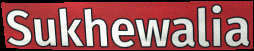
Sukhewalia